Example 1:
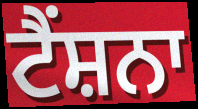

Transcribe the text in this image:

ਟੈਂਸ਼ਨਾ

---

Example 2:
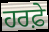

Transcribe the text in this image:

ਹਰਫ਼ੇ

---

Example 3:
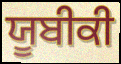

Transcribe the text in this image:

ਯੂਬੀਕੀ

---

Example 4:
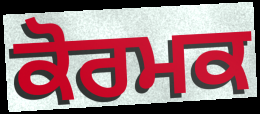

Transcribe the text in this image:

ਕੋਰਮਕ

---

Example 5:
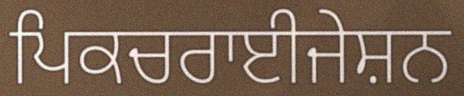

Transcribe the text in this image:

ਪਿਕਚਰਾਈਜੇਸ਼ਨ